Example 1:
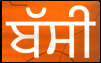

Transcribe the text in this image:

ਬੱਸੀ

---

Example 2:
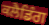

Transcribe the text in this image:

ਕਲੈਡਿੰਗ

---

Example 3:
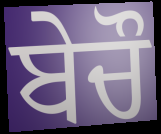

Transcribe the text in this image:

ਬੇਚੌ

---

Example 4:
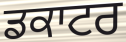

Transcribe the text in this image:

ਡਕਾਟਰ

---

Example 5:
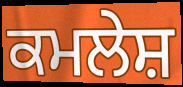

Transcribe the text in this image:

ਕਮਲੇਸ਼